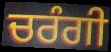
ਚਰੰਗੀ